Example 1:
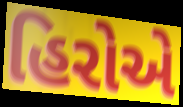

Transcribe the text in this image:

હિરોએ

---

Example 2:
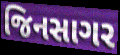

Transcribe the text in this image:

જિનસાગર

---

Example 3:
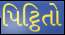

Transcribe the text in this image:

પિટ્ઠિતો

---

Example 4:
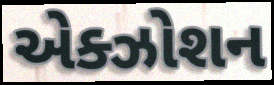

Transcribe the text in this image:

એક્ઝોશન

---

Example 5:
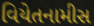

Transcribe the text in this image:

વિયેતનામીસ